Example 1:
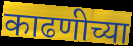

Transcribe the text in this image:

काढणीच्या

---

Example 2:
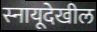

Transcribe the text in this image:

स्नायूदेखील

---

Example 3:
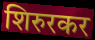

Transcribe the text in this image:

शिरुरकर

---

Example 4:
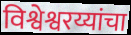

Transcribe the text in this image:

विश्वेश्वरय्यांचा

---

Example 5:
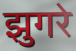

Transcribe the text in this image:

झुगरे